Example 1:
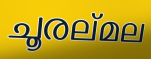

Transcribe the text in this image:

ചൂരല്മല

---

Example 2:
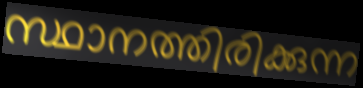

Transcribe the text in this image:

സ്ഥാനത്തിരിക്കുന്ന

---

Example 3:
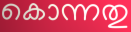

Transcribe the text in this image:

കൊന്നതു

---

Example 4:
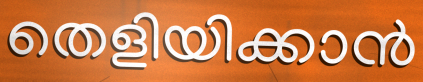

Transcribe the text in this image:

തെളിയിക്കാൻ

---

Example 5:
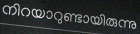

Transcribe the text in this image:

നിറയാറുണ്ടായിരുന്നു